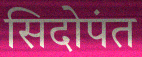
सिदोपंत